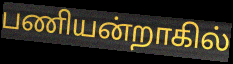
பணியன்றாகில்